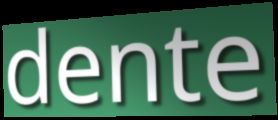
dente